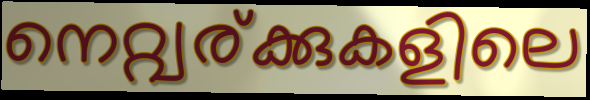
നെറ്റ്വര്ക്കുകളിലെ